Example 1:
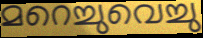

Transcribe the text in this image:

മറെച്ചുവെച്ചു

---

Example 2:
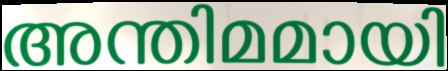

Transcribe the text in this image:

അന്തിമമായി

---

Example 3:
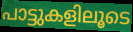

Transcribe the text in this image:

പാട്ടുകളിലൂടെ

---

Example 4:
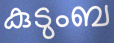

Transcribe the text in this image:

കുടുംബ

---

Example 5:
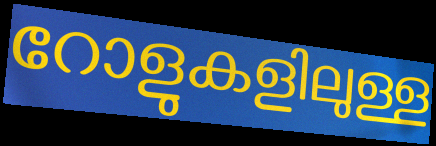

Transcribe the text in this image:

റോളുകളിലുള്ള